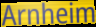
Arnheim